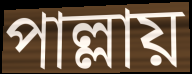
পাল্লায়